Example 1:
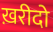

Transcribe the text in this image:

ख़रीदो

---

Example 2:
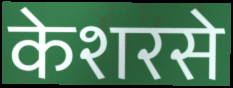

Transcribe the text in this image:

केशरसे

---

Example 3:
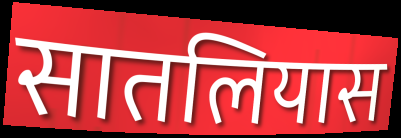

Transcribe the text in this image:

सातलियास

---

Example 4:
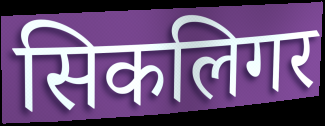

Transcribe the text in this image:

सिकलिगर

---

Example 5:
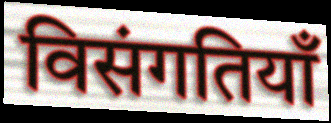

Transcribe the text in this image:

विसंगतियाँ